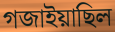
গজাইয়াছিল